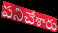
పనిచేశారు